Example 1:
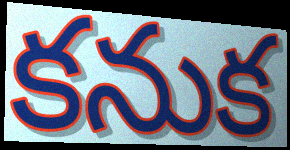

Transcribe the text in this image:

కనుక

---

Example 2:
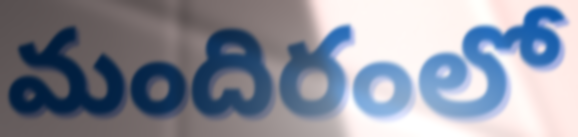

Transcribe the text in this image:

మందిరంలో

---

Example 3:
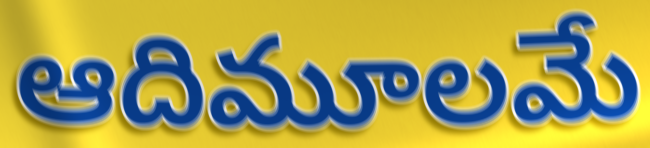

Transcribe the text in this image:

ఆదిమూలమే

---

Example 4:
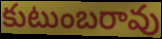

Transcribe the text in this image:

కుటుంబరావు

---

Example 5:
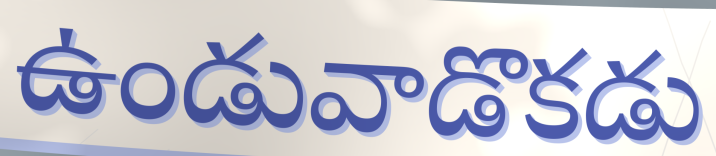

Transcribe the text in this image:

ఉండువాడొకడు